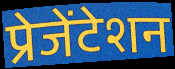
प्रेजेंटेशन